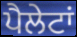
ਪੈਲੇਟਾਂ